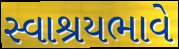
સ્વાશ્રયભાવે